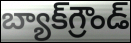
బ్యాక్‌గ్రౌండ్